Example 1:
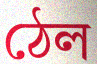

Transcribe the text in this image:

ঠেল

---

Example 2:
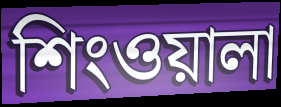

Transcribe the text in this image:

শিংওয়ালা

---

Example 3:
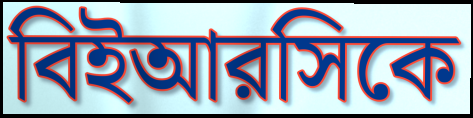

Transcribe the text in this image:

বিইআরসিকে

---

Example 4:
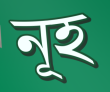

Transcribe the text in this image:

নূহ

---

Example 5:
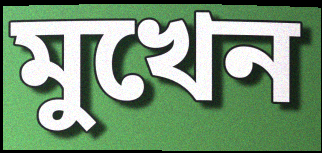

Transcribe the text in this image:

মুখেন